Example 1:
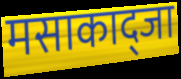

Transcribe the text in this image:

मसाकाद्जा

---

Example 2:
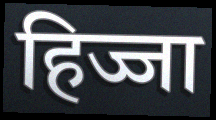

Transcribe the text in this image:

हिज्जा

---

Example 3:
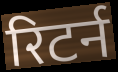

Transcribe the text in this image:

रिटर्न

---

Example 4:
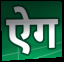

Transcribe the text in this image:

ऐग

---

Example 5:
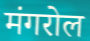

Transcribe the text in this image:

मंगरोल